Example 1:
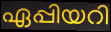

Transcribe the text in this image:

ഏപ്പിയറി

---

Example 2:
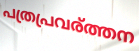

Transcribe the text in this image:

പത്രപ്രവര്ത്തന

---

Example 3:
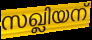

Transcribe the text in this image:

സഖ്ലിയന്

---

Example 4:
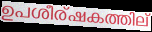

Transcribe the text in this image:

ഉപശീര്ഷകത്തില്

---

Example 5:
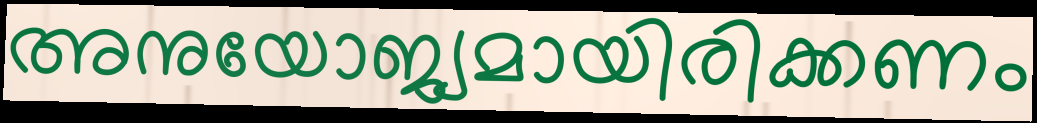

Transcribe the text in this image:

അനുയോജ്യമായിരിക്കണം